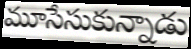
మూసేసుకున్నాడు